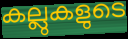
കല്ലുകളുടെ